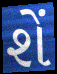
શેં